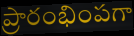
ప్రారంభింపగా